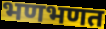
भणभणत